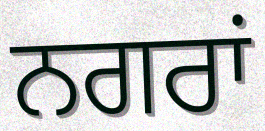
ਨਗਰਾਂ